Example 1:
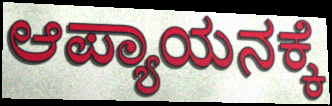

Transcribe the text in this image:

ಆಪ್ಯಾಯನಕ್ಕೆ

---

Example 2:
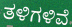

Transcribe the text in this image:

ತಳಿಗಳಿವೆ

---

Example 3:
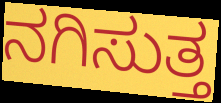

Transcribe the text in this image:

ನಗಿಸುತ್ತ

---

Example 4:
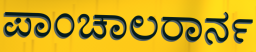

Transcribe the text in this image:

ಪಾಂಚಾಲರಾರ್ನ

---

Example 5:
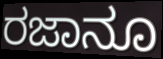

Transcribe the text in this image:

ರಜಾನೂ